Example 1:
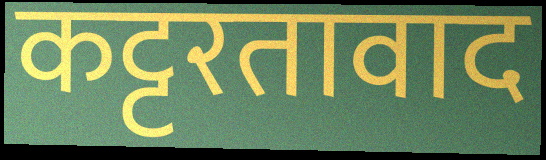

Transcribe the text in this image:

कट्टरतावाद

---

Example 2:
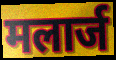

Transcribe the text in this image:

मलार्ज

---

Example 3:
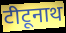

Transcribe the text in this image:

टीटूनाथ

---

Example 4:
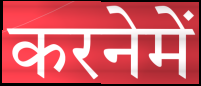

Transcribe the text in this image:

करनेमें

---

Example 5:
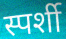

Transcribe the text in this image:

स्पर्शी